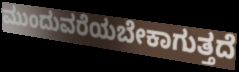
ಮುಂದುವರೆಯಬೇಕಾಗುತ್ತದೆ